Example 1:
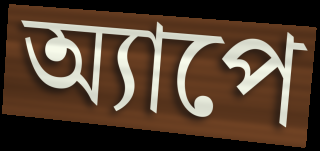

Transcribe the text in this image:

অ্যাপে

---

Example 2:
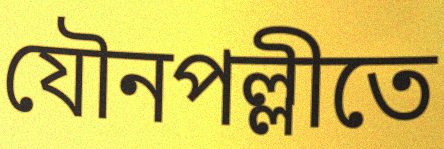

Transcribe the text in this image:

যৌনপল্লীতে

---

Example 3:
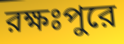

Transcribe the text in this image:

রক্ষঃপুরে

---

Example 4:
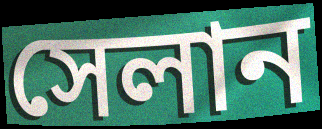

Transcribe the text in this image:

সেলান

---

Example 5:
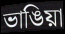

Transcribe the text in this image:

ভাঙিয়া